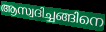
ആസ്വദിച്ചങ്ങിനെ